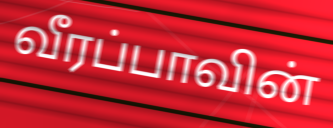
வீரப்பாவின்